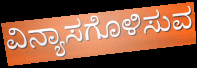
ವಿನ್ಯಾಸಗೊಳಿಸುವ